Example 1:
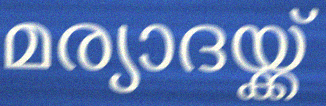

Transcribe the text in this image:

മര്യാദയ്ക്ക്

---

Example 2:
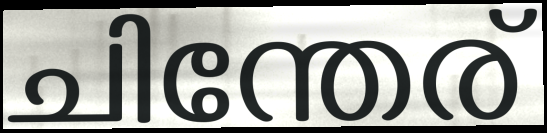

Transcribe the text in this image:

ചിന്തേര്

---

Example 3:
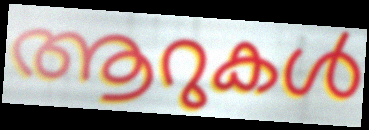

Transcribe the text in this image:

ആറുകൾ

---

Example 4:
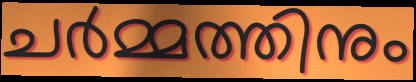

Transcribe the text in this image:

ചർമ്മത്തിനും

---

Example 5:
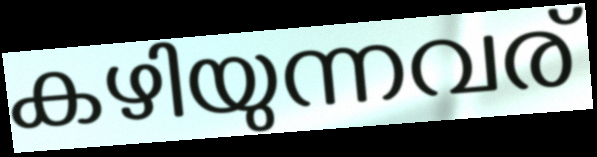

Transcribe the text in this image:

കഴിയുന്നവര്